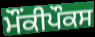
ਮੌਂਕੀਪੌਕਸ